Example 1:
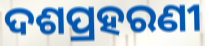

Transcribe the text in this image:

ଦଶପ୍ରହରଣୀ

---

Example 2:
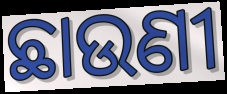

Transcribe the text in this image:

ଛାଉଣୀ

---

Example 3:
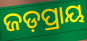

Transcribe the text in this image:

ଜଡ଼ପ୍ରାୟ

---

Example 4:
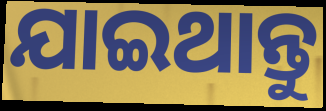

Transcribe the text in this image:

ଯାଇଥାନ୍ତୁ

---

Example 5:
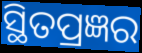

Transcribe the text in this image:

ସ୍ଥିତପ୍ରଜ୍ଞର